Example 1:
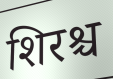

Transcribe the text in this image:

शिरश्च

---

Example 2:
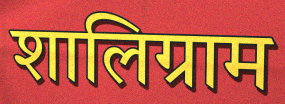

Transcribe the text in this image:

शालिग्राम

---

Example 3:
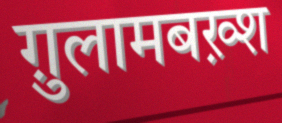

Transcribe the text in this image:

ग़ुलामबख़्श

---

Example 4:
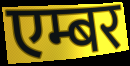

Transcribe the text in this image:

एम्बर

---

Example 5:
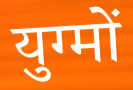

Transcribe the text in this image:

युग्मों